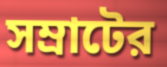
সম্রাটের